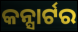
କନ୍ସାର୍ଟର